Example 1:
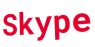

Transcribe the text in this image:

Skype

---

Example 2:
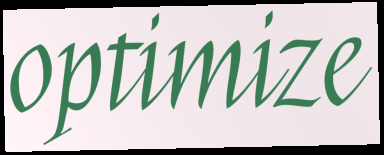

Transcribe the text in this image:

optimize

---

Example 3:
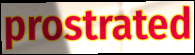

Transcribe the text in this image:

prostrated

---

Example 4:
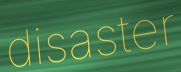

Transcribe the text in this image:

disaster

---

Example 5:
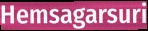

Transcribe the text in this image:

Hemsagarsuri